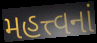
મહત્ત્વનાં